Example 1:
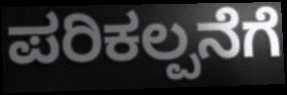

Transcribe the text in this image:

ಪರಿಕಲ್ಪನೆಗೆ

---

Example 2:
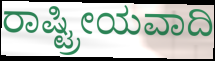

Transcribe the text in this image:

ರಾಷ್ಟ್ರೀಯವಾದಿ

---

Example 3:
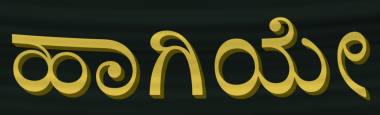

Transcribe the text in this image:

ಹಾಗಿಯೇ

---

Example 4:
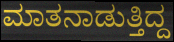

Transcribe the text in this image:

ಮಾತನಾಡುತ್ತಿದ್ದ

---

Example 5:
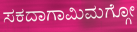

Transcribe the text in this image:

ಸಕದಾಗಾಮಿಮಗ್ಗೋ